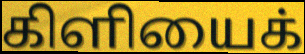
கிளியைக்